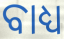
ବାଧ୍ୟ